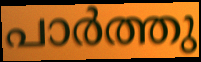
പാർത്തു